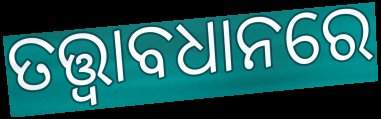
ତତ୍ତ୍ଵାବଧାନରେ